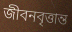
জীবনবৃত্তান্ত